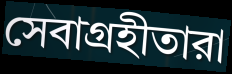
সেবাগ্রহীতারা